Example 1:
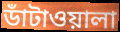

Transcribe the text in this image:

ডাঁটাওয়ালা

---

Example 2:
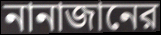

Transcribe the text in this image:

নানাজানের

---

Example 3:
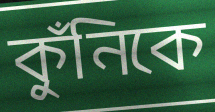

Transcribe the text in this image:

কুঁনিকে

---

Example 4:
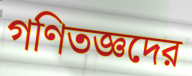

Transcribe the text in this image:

গণিতজ্ঞদের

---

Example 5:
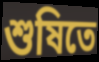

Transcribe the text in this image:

শুষিতে